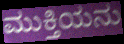
ಮುಕ್ತಿಯನು